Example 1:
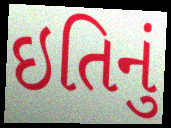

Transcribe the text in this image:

ઇતિનું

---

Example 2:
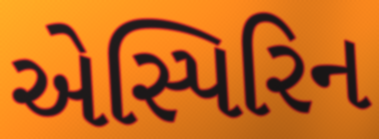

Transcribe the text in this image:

એસ્પિરિન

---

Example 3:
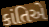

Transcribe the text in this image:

કાંતિએ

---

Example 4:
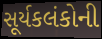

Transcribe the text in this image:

સૂર્યકલંકોની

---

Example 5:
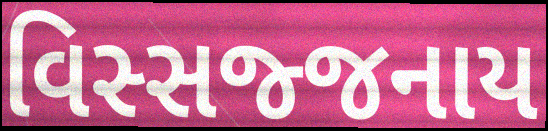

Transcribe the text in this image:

વિસ્સજ્જનાય